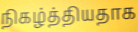
நிகழ்த்தியதாக